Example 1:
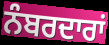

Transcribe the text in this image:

ਨੰਬਰਦਾਰਾਂ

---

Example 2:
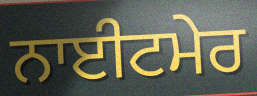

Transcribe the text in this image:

ਨਾਈਟਮੇਰ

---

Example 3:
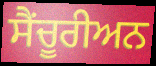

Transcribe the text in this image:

ਸੈਂਚੂਰੀਅਨ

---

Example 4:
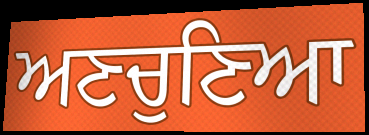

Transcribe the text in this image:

ਅਣਚੁਣਿਆ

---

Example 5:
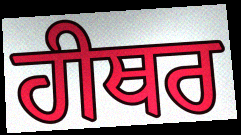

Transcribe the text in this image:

ਹੀਥਰ